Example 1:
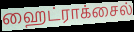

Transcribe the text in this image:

ஹைட்ராக்சைல்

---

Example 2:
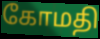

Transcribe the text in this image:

கோமதி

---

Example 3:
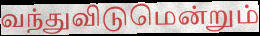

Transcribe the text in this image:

வந்துவிடுமென்றும்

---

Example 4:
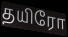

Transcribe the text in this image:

தயிரோ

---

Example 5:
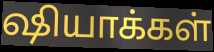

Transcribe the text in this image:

ஷியாக்கள்